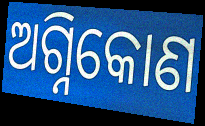
ଅଗ୍ନିକୋଣ